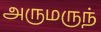
அருமருந்